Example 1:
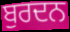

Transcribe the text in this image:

ਬੁਰਦਨ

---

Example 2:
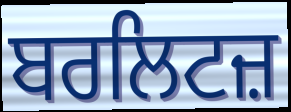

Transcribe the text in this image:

ਬਰਲਿਟਜ਼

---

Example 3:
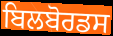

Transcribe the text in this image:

ਬਿਲਬੋਰਡਸ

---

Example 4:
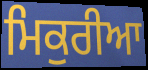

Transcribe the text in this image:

ਮਿਕੁਰੀਆ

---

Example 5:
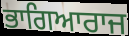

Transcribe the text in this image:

ਭਾਗਿਆਰਾਜ